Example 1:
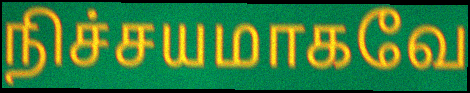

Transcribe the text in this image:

நிச்சயமாகவே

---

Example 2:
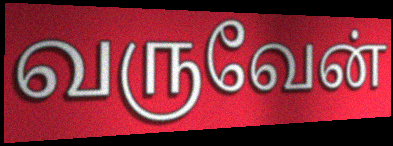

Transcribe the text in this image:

வருவேன்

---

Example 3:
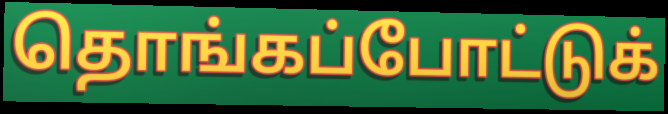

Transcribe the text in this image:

தொங்கப்போட்டுக்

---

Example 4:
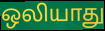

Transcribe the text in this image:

ஒலியாது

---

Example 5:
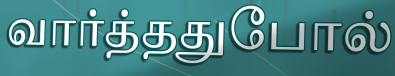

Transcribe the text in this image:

வார்த்ததுபோல்